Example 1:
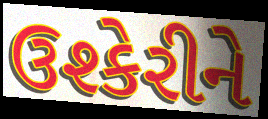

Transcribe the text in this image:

ઉશ્કેરીને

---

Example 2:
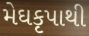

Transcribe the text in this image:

મેઘકૃપાથી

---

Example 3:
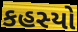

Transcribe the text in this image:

કહસ્યો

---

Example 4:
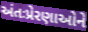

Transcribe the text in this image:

અંતઃપ્રેરણાઓને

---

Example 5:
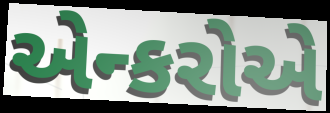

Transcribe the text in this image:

એન્કરોએ